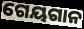
ଗେୟଗାନ